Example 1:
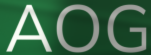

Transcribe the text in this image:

AOG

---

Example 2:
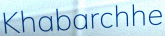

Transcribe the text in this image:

Khabarchhe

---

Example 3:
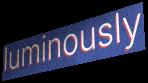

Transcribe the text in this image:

luminously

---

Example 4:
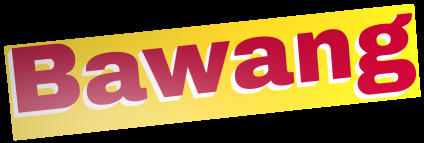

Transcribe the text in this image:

Bawang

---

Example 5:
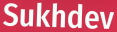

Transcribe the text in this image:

Sukhdev